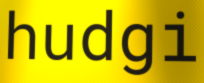
hudgi